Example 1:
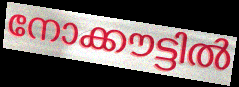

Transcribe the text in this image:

നോക്കൗട്ടിൽ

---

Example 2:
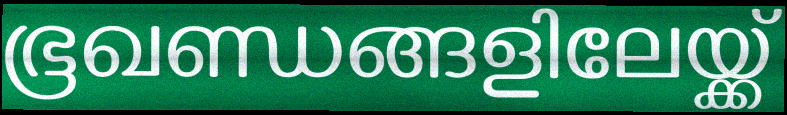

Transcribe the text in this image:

ഭൂഖണ്ഡങ്ങളിലേയ്ക്ക്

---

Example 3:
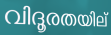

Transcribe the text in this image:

വിദൂരതയില്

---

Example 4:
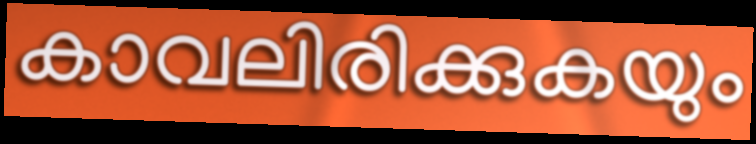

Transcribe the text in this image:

കാവലിരിക്കുകയും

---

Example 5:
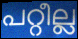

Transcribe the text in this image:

പറ്റീല്ല